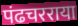
पंढचरराया